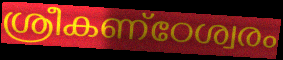
ശ്രീകണ്‌ഠേശ്വരം